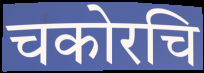
चकोरचि